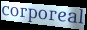
corporeal